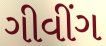
ગીવીંગ